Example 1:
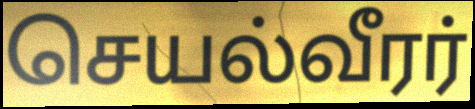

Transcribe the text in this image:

செயல்வீரர்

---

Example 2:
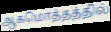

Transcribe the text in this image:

ஆகமொத்தத்தில்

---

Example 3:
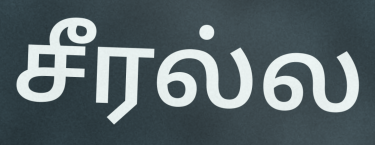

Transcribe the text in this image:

சீரல்ல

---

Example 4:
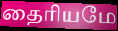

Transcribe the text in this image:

தைரியமே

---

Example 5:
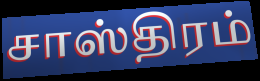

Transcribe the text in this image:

சாஸ்திரம்